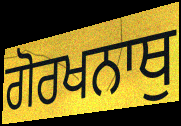
ਗੋਰਖਨਾਥੁ